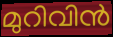
മുറിവിൻ